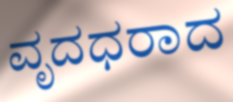
ವೃದಧರಾದ